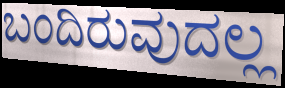
ಬಂದಿರುವುದಲ್ಲ